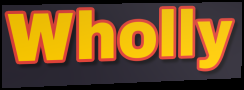
Wholly